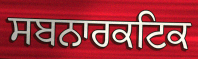
ਸਬਨਾਰਕਟਿਕ